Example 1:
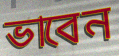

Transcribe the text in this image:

ভাবেন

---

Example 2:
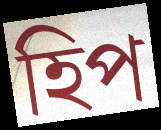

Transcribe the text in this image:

হিপ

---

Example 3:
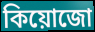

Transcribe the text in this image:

কিয়োজো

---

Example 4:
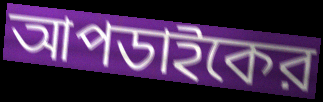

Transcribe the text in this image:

আপডাইকের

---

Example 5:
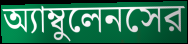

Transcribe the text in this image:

অ্যাম্বুলেনসের